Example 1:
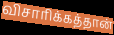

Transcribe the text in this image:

விசாரிக்கத்தான்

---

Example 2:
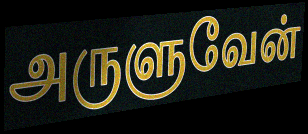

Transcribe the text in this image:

அருளுவேன்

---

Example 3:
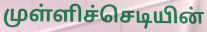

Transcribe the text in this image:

முள்ளிச்செடியின்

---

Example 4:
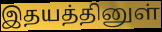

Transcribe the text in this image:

இதயத்தினுள்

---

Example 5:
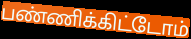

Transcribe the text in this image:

பண்ணிக்கிட்டோம்